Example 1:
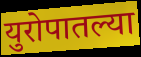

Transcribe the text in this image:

युरोपातल्या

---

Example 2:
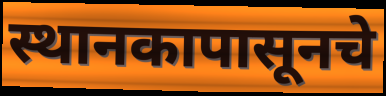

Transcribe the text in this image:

स्थानकापासूनचे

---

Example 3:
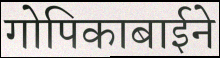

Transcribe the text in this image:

गोपिकाबाईने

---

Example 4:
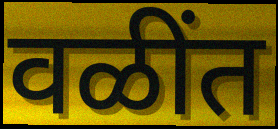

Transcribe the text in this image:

वळींत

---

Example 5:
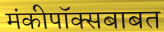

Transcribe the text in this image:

मंकीपॉक्सबाबत